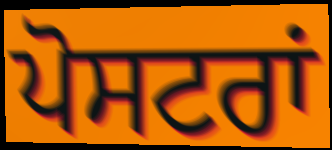
ਪੋਸਟਰਾਂ